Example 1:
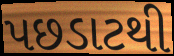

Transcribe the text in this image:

પછડાટથી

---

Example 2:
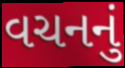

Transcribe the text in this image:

વચનનું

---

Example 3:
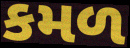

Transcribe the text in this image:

કમળ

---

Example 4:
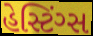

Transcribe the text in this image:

હેસ્ટિંગ્સ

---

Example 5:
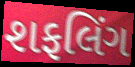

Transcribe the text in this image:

શફલિંગ